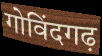
गोविंदगढ़